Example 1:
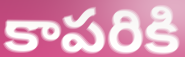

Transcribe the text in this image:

కాపరికి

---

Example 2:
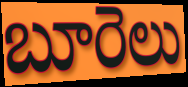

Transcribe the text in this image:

బూరెలు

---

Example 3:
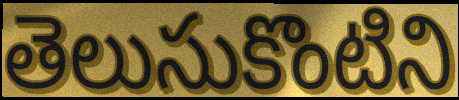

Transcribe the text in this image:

తెలుసుకొంటిని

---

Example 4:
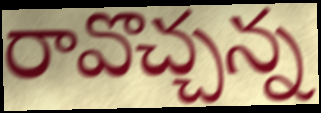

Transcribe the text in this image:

రావొచ్చన్న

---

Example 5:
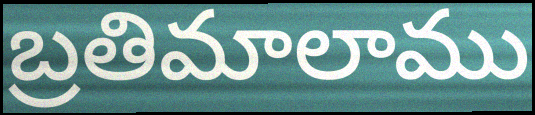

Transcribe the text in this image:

బ్రతిమాలాము